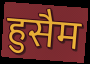
हुसैम